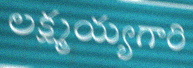
లక్ష్మయ్యగారి